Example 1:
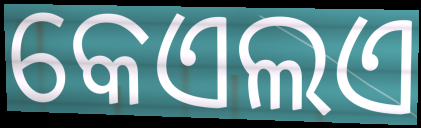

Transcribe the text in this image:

କେଏଲଏ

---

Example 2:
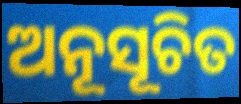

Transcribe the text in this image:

ଅନୂସୂଚିତ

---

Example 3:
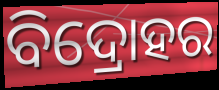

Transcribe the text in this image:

ବିଦ୍ରୋହର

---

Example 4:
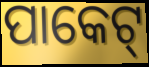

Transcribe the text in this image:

ପାକେଟ୍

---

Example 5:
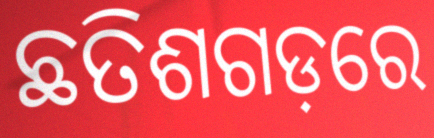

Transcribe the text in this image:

ଛତିଶଗଡ଼ରେ